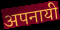
अपनायी